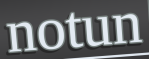
notun